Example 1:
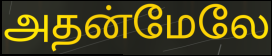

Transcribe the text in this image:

அதன்மேலே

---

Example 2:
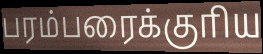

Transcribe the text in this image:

பரம்பரைக்குரிய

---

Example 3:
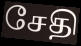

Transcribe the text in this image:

சேதி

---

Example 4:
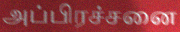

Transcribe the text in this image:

அப்பிரச்சனை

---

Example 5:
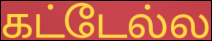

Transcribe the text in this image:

கட்டேல்ல